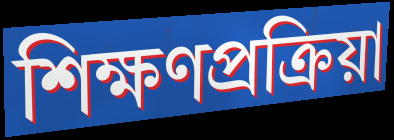
শিক্ষণপ্রক্রিয়া